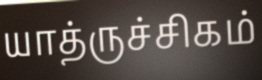
யாத்ருச்சிகம்